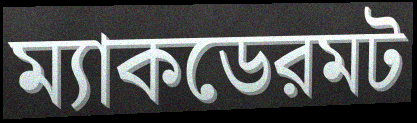
ম্যাকডেরমট